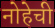
नोहेची